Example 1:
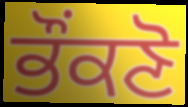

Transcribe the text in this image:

ਭੌਂਕਣੋ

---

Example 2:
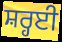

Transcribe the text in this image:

ਸ਼ਰ੍ਹਈ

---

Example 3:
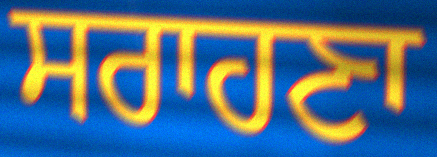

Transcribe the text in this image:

ਸਰਾਹਣਾ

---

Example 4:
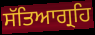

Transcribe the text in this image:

ਸੱਤਿਆਗ੍ਰਹਿ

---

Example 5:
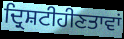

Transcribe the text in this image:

ਦ੍ਰਿਸ਼ਟੀਹੀਣਤਾਵਾਂ